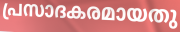
പ്രസാദകരമായതു